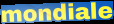
mondiale